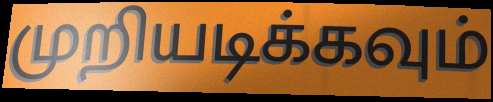
முறியடிக்கவும்